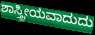
ಶಾಸ್ತ್ರೀಯವಾದುದು